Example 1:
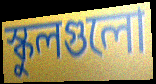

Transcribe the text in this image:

স্কুলগুলো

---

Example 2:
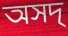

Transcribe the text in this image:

অসদ্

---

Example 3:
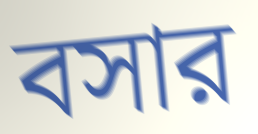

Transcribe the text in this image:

বসার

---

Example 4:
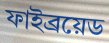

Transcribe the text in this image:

ফাইব্রয়েড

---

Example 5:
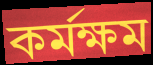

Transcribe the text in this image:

কর্মক্ষম